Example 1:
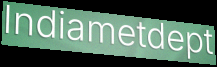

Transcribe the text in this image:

Indiametdept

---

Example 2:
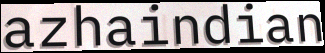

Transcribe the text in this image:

azhaindian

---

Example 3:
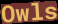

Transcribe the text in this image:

Owls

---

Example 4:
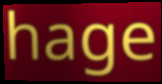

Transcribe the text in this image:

hage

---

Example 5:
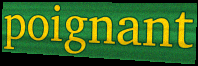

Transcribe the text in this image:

poignant